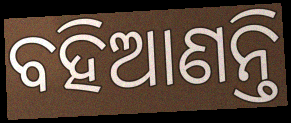
ବହିଆଣନ୍ତି